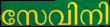
സേവിനി